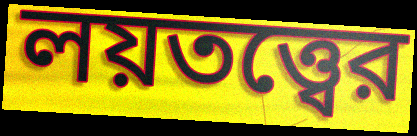
লয়তত্ত্বের